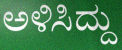
ಅಳಿಸಿದ್ದು